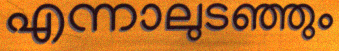
എന്നാലുടഞ്ഞും